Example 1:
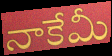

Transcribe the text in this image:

నాకేమీ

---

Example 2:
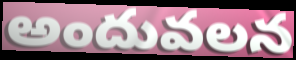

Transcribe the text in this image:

అందువలన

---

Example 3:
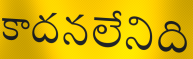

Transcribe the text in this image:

కాదనలేనిది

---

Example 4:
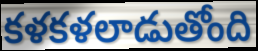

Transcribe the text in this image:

కళకళలాడుతోంది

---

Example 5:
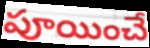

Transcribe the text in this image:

పూయించే